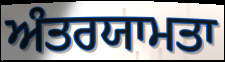
ਅੰਤਰਯਾਮਤਾ